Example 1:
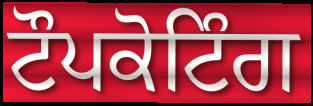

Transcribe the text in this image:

ਟੌਪਕੋਟਿੰਗ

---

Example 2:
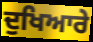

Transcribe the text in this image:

ਦੁਖਿਆਰੇ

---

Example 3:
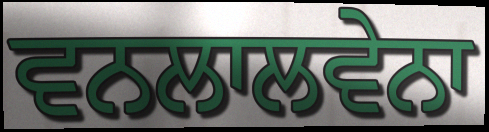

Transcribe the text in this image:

ਵਨਲਾਲਵੇਨਾ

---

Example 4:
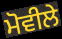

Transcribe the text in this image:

ਮੋਵੀਲੇ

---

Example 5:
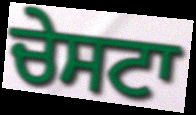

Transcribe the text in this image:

ਚੇਸਟਾ